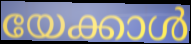
യേക്കാൾ